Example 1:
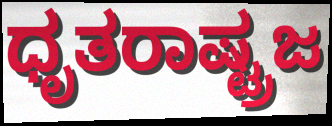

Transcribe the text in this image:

ಧೃತರಾಷ್ಟ್ರಜ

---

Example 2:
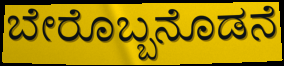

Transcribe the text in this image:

ಬೇರೊಬ್ಬನೊಡನೆ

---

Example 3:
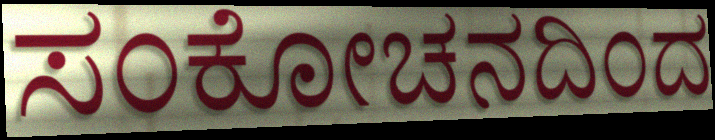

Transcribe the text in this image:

ಸಂಕೋಚನದಿಂದ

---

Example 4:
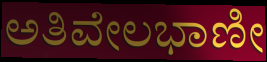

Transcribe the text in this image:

ಅತಿವೇಲಭಾಣೀ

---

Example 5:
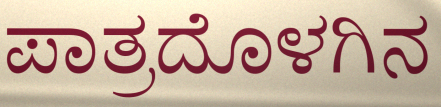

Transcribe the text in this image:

ಪಾತ್ರದೊಳಗಿನ